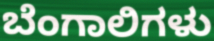
ಬೆಂಗಾಲಿಗಳು